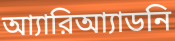
আ্যারিআ্যাডনি